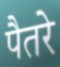
पैतरे